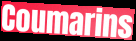
Coumarins